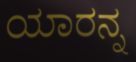
ಯಾರನ್ನ